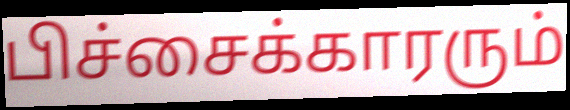
பிச்சைக்காரரும்